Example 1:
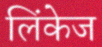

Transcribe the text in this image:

लिंकेज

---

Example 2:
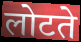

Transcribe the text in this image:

लोटते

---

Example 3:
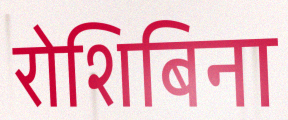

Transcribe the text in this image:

रोशिबिना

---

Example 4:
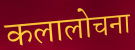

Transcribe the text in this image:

कलालोचना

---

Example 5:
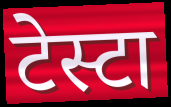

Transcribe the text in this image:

टेस्टा